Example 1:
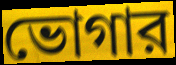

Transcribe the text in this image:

ভোগার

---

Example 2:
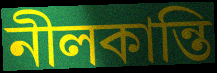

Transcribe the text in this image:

নীলকান্তি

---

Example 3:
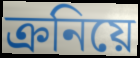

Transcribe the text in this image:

ক্রনিয়ে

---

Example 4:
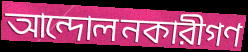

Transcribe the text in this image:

আন্দোলনকারীগণ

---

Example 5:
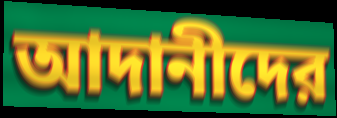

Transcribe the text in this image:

আদানীদের